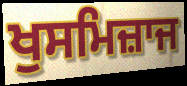
ਖੁਸਮਿਜ਼ਾਜ